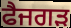
ਫੈਜਗੜ